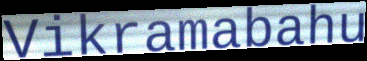
Vikramabahu